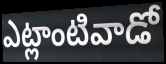
ఎట్లాంటివాడో